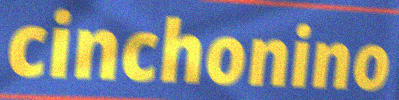
cinchonino